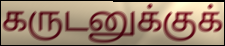
கருடனுக்குக்